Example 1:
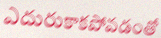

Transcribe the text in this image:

ఎదురుకాకపోవడంతో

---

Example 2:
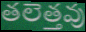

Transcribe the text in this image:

తలెత్తవు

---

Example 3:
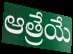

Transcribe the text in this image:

ఆత్రేయే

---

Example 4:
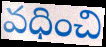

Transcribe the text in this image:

వధించి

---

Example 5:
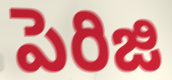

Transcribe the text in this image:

పెరిజి